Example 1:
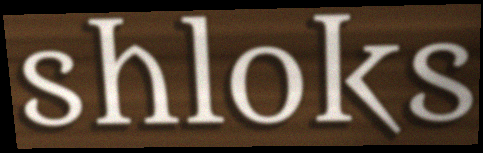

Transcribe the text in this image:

shloks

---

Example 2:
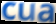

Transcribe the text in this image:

cua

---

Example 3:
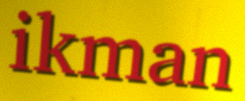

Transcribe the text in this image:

ikman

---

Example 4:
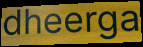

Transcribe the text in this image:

dheerga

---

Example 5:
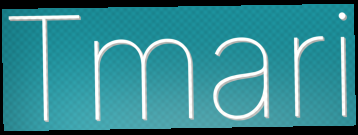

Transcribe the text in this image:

Tmari